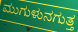
ಮುಗುಳುನಗುತ್ತ